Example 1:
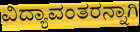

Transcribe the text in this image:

ವಿದ್ಯಾವಂತರನ್ನಾಗಿ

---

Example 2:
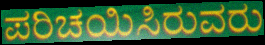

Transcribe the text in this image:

ಪರಿಚಯಿಸಿರುವರು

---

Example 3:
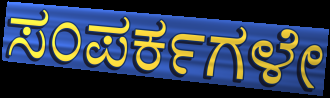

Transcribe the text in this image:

ಸಂಪರ್ಕಗಳೇ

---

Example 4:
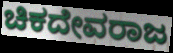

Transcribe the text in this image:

ಚಿಕದೇವರಾಜ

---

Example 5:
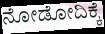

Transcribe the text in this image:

ನೋಡೋದಿಕ್ಕೆ